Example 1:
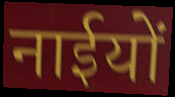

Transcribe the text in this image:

नाईयों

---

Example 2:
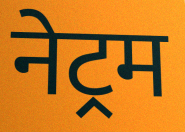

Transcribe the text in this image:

नेट्रम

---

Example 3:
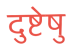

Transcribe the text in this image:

दुष्टेषु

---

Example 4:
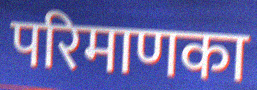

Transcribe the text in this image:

परिमाणका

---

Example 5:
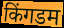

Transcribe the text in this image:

किंगडम